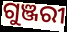
ଗୁଞ୍ଜରୀ